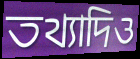
তথ্যাদিও